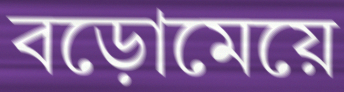
বড়োমেয়ে